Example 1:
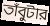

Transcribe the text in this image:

তাঁবুটার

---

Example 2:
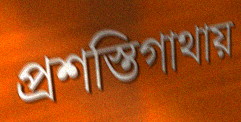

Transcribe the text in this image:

প্রশস্তিগাথায়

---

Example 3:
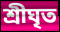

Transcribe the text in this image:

শ্রীঘৃত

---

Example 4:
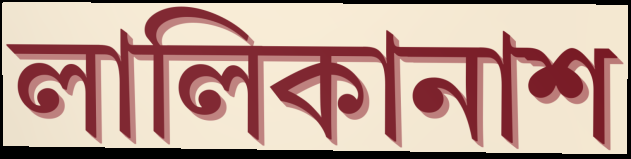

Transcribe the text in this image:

লালিকানাশ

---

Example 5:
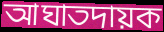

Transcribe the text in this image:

আঘাতদায়ক